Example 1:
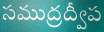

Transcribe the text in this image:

సముద్రద్వీప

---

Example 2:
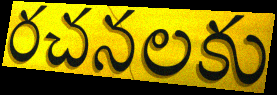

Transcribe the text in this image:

రచనలకు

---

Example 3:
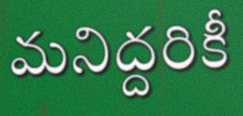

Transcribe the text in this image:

మనిద్దరికీ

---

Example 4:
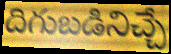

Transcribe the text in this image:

దిగుబడినిచ్చే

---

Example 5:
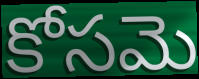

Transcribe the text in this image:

కోసమె